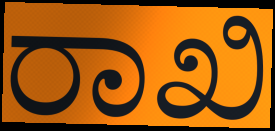
ರಾಖಿ